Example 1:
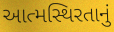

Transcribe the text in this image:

આત્મસ્થિરતાનું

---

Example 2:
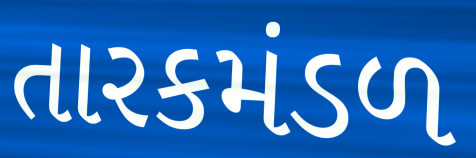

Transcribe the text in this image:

તારકમંડળ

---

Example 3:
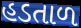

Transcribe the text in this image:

હડતાળ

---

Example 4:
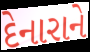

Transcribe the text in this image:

દેનારાને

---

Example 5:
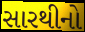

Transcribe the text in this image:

સારથીનો